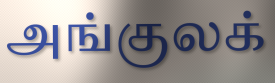
அங்குலக்